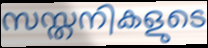
സസ്തനികളുടെ